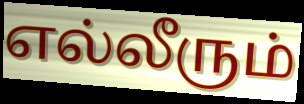
எல்லீரும்